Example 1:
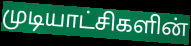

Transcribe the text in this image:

முடியாட்சிகளின்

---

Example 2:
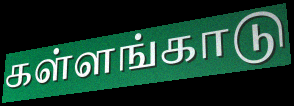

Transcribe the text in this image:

கள்ளங்காடு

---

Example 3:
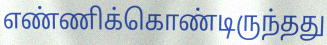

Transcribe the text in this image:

எண்ணிக்கொண்டிருந்தது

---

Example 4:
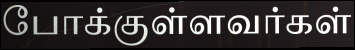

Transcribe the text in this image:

போக்குள்ளவர்கள்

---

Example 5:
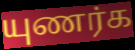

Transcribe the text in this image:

யுணர்க